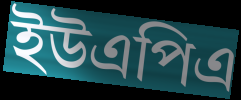
ইউএপিএ